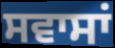
ਸਵਾਸਾਂ